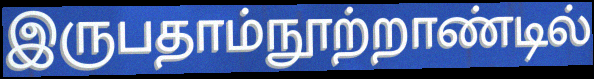
இருபதாம்நூற்றாண்டில்